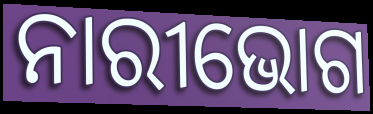
ନାରୀଭୋଗ